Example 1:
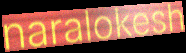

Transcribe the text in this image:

naralokesh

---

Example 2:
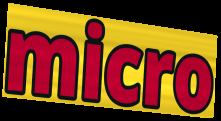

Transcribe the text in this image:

micro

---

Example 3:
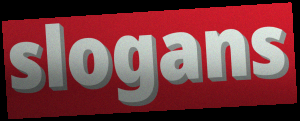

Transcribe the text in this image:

slogans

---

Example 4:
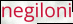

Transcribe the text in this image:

negiloni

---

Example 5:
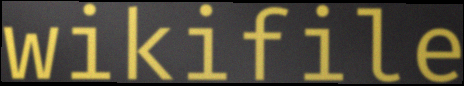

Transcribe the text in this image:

wikifile